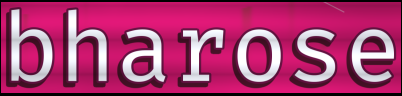
bharose